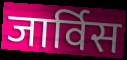
जार्विस